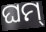
ଘମ୍